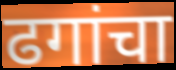
ढगांचा